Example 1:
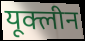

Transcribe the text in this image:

यूक्लीन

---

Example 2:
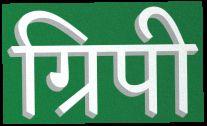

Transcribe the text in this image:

ग्रिपी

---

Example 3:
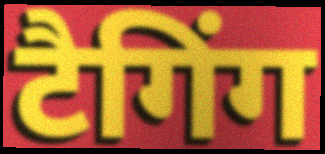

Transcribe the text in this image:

टैगिंग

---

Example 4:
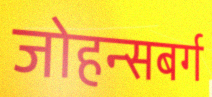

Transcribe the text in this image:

जोहन्सबर्ग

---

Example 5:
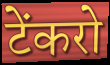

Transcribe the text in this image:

टेंकरो